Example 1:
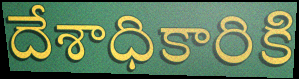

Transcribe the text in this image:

దేశాధికారికి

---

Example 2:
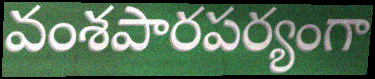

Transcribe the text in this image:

వంశపారపర్యంగా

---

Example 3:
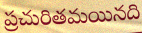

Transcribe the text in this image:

ప్రచురితమయినది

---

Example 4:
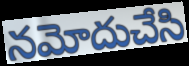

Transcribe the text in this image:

నమోదుచేసి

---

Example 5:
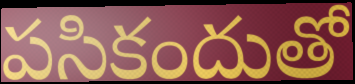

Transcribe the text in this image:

పసికందుతో